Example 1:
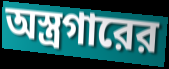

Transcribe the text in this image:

অস্ত্রগারের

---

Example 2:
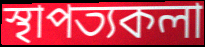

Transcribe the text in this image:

স্থাপত্যকলা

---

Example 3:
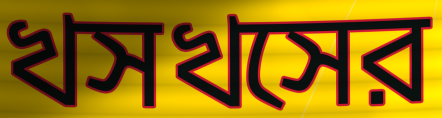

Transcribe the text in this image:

খসখসের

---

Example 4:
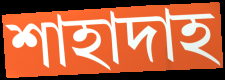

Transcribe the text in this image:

শাহাদাহ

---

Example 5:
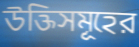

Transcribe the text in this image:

উক্তিসমূহের